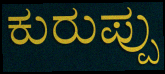
ಕುರುಪ್ಪು